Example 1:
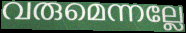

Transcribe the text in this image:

വരുമെന്നല്ലേ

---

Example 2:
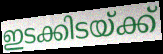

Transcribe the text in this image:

ഇടക്കിടയ്ക്ക്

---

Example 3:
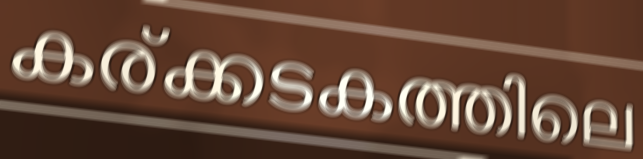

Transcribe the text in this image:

കര്ക്കടകത്തിലെ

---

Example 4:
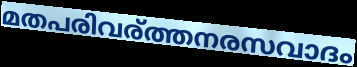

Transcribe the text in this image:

മതപരിവര്ത്തനരസവാദം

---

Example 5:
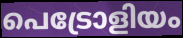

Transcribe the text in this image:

പെട്രോളിയം